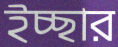
ইচ্ছার